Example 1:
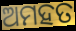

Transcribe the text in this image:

ଅମହତ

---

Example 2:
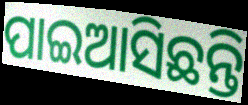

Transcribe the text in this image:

ପାଇଆସିଛନ୍ତି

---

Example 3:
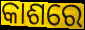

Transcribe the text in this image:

କାଶରେ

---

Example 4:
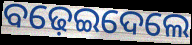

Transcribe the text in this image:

ବଢ଼େଇଦେଲେ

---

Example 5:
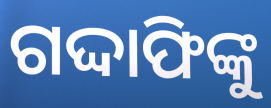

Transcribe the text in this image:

ଗଦ୍ଦାଫିଙ୍କୁ